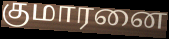
குமாரனை